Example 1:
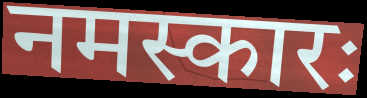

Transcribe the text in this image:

नमस्कारः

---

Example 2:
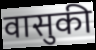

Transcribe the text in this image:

वासुकी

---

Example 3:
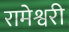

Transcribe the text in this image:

रामेश्वरी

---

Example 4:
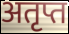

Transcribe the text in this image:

अतृप्त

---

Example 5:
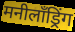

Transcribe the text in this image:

मनीलॉंड्रिंग